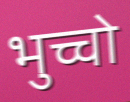
भुच्चो